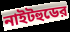
নাইটহুডের